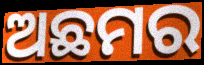
ଅଛମର